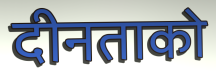
दीनताको